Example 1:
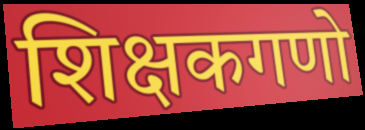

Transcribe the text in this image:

शिक्षकगणो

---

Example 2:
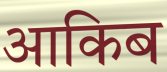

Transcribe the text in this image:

आकिब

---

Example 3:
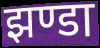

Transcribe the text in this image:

झण्डा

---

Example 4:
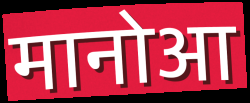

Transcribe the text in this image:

मानोआ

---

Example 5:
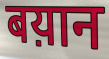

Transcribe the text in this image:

बय़ान